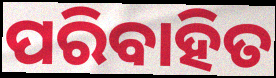
ପରିବାହିତ